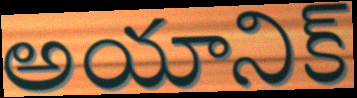
అయానిక్